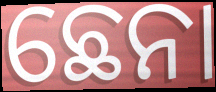
ଛେନା